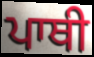
ਪਾਥੀ